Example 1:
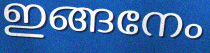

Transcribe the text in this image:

ഇങ്ങനേം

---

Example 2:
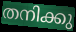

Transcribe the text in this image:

തനിക്കു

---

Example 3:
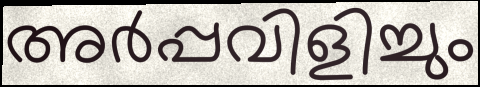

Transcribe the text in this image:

അർപ്പവിളിച്ചും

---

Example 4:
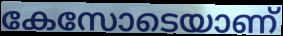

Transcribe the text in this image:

കേസോടെയാണ്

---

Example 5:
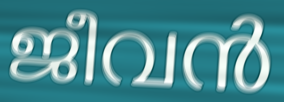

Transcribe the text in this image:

ജീവൻ